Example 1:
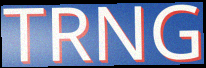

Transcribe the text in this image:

TRNG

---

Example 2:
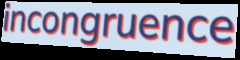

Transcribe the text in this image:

incongruence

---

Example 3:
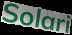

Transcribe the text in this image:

Solari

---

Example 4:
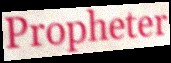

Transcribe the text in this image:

Propheter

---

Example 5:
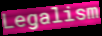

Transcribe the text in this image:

Legalism